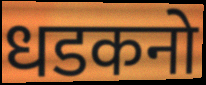
धडकनो